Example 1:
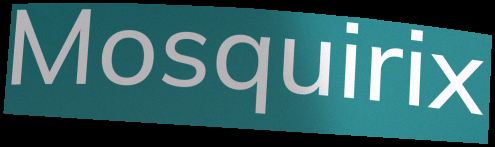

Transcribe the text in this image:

Mosquirix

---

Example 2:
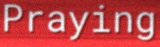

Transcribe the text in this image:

Praying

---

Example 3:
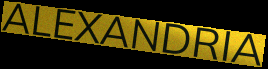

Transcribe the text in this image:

ALEXANDRIA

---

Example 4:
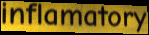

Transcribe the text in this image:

inflamatory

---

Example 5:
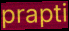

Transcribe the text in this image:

prapti